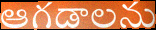
ఆగడాలను